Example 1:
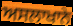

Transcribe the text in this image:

ਅਸਲਾਖਾਨੇ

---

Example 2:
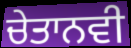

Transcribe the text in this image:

ਚੇਤਾਨਵੀ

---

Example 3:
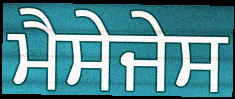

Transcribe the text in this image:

ਮੈਸੇਜੇਸ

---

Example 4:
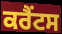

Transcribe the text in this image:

ਕਰੈਂਟਸ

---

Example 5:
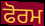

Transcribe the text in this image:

ਫੋਰਮ